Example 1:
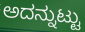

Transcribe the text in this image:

ಅದನ್ನುಟ್ಟು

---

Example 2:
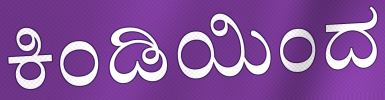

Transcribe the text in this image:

ಕಿಂಡಿಯಿಂದ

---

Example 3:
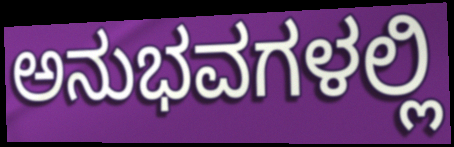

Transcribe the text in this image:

ಅನುಭವಗಳಲ್ಲಿ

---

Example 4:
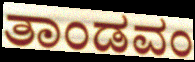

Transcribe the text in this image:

ತಾಂಡವಂ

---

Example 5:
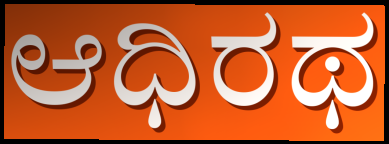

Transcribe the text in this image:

ಆಧಿರಥ